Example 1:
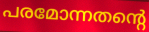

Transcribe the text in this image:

പരമോന്നതന്റെ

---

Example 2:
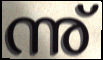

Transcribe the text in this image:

ന്നു്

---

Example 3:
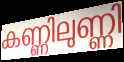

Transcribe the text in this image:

കണ്ണിലുണ്ണി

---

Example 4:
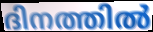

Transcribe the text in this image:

ദിനത്തിൽ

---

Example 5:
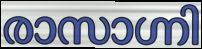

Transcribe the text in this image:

രാസാഗ്നി